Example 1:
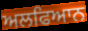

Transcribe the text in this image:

ਅਲਫਿਆਨ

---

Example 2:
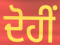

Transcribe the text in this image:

ਦੋਹੀਂ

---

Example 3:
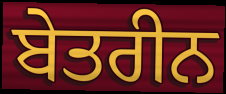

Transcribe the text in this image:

ਬੇਤਰੀਨ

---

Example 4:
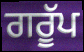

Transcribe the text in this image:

ਗਰੂੱਪ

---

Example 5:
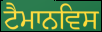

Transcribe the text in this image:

ਟੈਮਾਨਵਿਸ